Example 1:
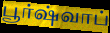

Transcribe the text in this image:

பூர்ஷ்வாப்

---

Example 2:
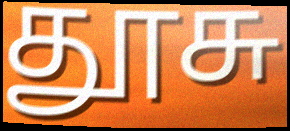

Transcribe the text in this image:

தூசு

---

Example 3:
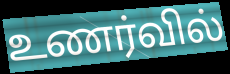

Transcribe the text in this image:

உணர்வில்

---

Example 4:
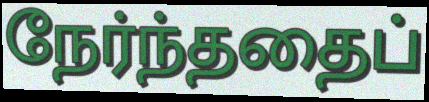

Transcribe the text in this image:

நேர்ந்ததைப்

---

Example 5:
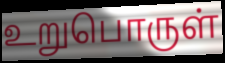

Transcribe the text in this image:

உறுபொருள்